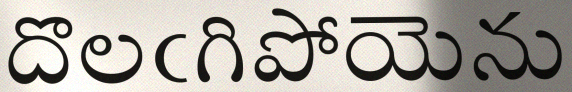
దొలఁగిపోయెను